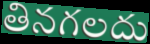
తినగలదు